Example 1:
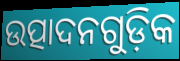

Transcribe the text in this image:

ଉତ୍ପାଦନଗୁଡ଼ିକ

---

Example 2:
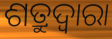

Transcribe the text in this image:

ଶତ୍ରୁଦ୍ଵାରା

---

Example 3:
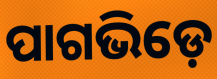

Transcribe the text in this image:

ପାଗଭିଡ଼େ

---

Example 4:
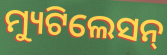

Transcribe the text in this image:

ମ୍ୟୁଟିଲେସନ୍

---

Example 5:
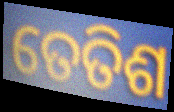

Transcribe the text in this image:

ତେତିଶ